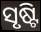
ସୃଷ୍ଟି